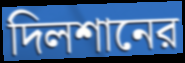
দিলশানের